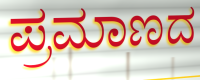
ಪ್ರಮಾಣದ